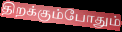
திறக்கும்போதும்